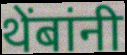
थेंबांनी